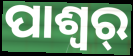
ପାଶ୍ୱର୍